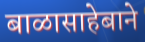
बाळासाहेबाने